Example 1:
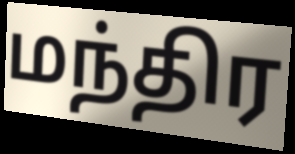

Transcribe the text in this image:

மந்திர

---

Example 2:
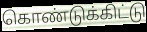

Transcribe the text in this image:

கொண்டுக்கிட்டு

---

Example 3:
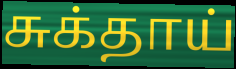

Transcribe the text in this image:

சுக்தாய்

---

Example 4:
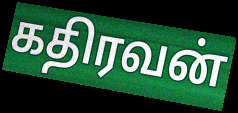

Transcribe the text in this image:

கதிரவன்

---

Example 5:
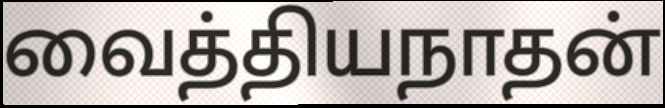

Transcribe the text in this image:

வைத்தியநாதன்